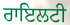
ਰਾਇਲਟੀ